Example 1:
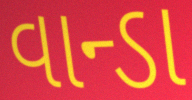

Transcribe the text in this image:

વાન્ડા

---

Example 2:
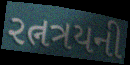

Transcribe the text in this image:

રત્નત્રયની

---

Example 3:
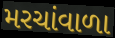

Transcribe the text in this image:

મરચાંવાળા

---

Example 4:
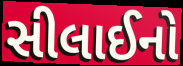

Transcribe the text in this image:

સીલાઈનો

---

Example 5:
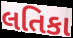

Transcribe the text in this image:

લતિકા